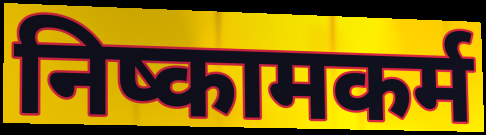
निष्कामकर्म